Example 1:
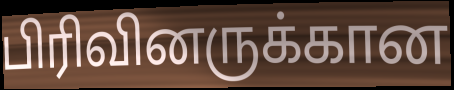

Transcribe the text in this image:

பிரிவினருக்கான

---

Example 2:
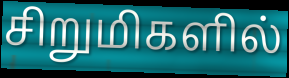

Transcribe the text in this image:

சிறுமிகளில்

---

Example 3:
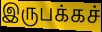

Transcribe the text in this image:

இருபக்கச்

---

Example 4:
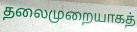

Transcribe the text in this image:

தலைமுறையாகத்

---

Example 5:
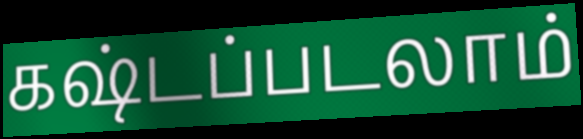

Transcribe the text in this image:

கஷ்டப்படலாம்